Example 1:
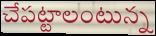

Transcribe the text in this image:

చేపట్టాలంటున్న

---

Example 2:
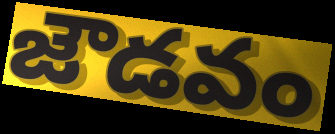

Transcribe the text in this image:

జౌడవం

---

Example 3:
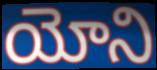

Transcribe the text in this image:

యోని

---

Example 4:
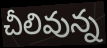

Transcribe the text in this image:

చీలివున్న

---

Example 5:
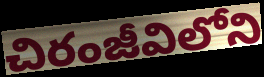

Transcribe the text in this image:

చిరంజీవిలోని